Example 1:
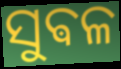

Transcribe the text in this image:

ସୁଵଳ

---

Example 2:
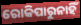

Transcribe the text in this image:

ରୋକିପାରୁନାହିଁ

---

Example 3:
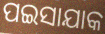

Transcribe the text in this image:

ପଇସାଯାକ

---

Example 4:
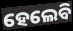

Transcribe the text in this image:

ହେଲେବି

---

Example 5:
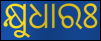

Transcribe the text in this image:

କ୍ଷୁଧାରଃ